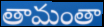
తామంతా